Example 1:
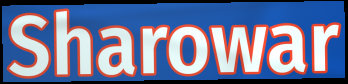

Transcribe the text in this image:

Sharowar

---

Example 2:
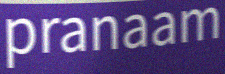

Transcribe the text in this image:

pranaam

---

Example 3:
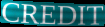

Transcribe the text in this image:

CREDIT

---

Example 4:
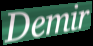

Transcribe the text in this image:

Demir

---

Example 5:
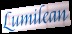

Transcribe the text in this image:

Lumilean